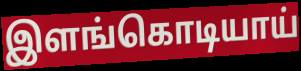
இளங்கொடியாய்